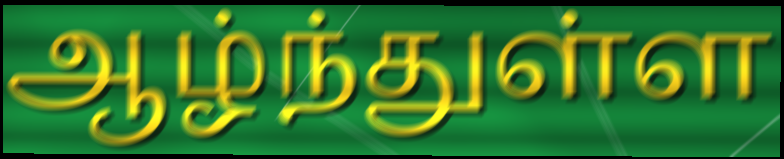
ஆழ்ந்துள்ள